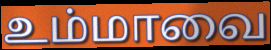
உம்மாவை